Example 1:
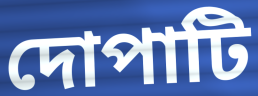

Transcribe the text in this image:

দোপাটি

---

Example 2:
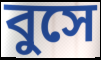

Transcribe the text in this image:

বুসে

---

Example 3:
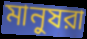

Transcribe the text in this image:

মানুষরা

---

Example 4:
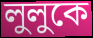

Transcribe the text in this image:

লুলুকে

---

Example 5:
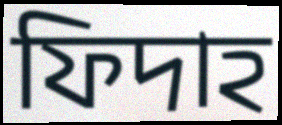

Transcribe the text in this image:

ফিদাহ